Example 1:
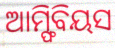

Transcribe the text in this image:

ଆମ୍ଫିବିୟସ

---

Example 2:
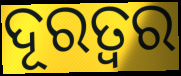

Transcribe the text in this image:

ଦୂରତ୍ଵର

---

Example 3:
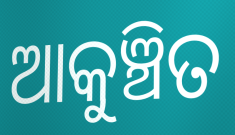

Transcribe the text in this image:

ଆକୁଞ୍ଚିତ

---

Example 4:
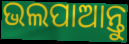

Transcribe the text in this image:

ଭଲପାଆନ୍ତୁ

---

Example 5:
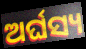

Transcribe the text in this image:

ଅର୍ଘସ୍ୟ